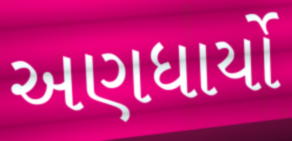
અણધાર્યો